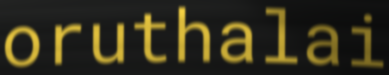
oruthalai